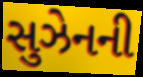
સુઝેનની